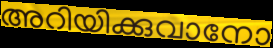
അറിയിക്കുവാനോ